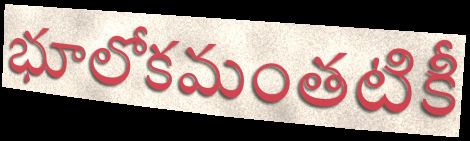
భూలోకమంతటికీ